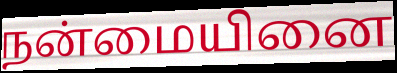
நன்மையினை